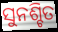
ସୁନଶ୍ଚିତ